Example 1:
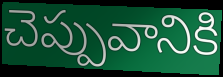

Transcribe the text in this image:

చెప్పువానికి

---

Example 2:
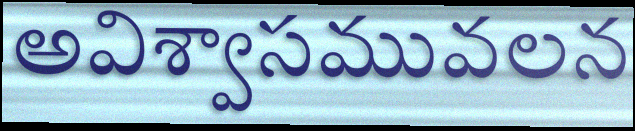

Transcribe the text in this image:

అవిశ్వాసమువలన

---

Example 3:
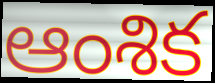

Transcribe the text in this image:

ఆంశిక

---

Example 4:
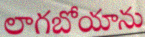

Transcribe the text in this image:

లాగబోయాను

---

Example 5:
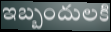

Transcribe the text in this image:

ఇబ్బందులకి